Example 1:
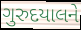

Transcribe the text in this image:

ગુરુદયાલને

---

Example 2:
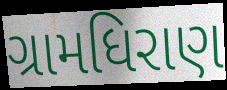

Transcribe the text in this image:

ગ્રામધિરાણ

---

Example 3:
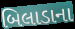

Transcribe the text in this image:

બિલાડાના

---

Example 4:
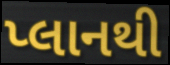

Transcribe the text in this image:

પ્લાનથી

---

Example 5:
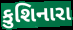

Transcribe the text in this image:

કુશિનારા